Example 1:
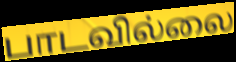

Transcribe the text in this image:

பாடவில்லை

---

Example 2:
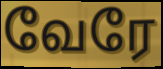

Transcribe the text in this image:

வேரே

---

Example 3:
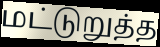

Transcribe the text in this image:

மட்டுறுத்த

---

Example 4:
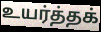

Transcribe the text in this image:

உயர்த்தக்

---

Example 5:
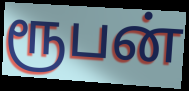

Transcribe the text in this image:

ரூபன்